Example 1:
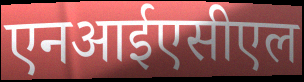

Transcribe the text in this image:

एनआईएसीएल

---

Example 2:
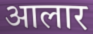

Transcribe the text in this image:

आलार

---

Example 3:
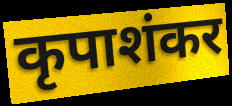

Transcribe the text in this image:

कृपाशंकर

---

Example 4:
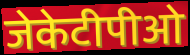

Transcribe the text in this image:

जेकेटीपीओ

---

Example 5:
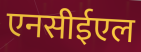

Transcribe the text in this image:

एनसीईएल